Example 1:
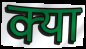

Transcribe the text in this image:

क्‍या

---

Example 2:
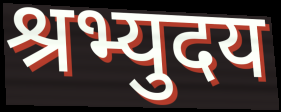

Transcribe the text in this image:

श्रभ्युदय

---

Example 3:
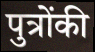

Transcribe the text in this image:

पुत्रोंकी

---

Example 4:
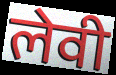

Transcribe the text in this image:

लेवी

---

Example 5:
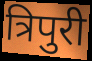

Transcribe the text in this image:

त्रिपुरी